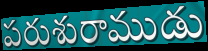
పరుశురాముడు